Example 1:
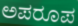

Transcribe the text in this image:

ಅಪರೂಪ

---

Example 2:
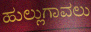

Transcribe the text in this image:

ಹುಲ್ಲುಗಾವಲು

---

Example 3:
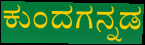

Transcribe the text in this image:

ಕುಂದಗನ್ನಡ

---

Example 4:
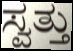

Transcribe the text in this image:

ಸ್ವತ್ತು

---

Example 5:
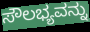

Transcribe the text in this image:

ಸೌಲಭ್ಯವನ್ನು